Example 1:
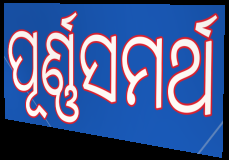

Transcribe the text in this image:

ପୂର୍ଣ୍ଣସମର୍ଥ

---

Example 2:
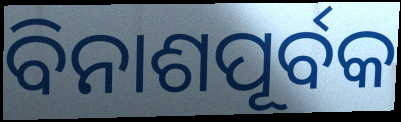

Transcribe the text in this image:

ବିନାଶପୂର୍ବକ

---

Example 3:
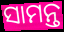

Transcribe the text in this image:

ସାମନ୍ତ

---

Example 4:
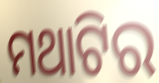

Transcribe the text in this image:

ମଥାଟିର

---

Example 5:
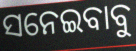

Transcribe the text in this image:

ସନେଇବାବୁ